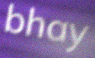
bhay